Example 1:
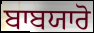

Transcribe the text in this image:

ਬਾਬਯਾਰੋ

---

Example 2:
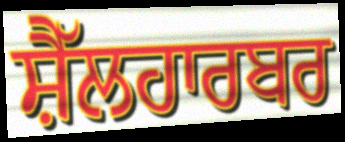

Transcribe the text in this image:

ਸ਼ੈੱਲਹਾਰਬਰ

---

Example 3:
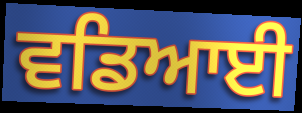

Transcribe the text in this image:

ਵਡਿਆਈ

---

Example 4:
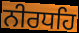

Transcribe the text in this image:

ਨੀਰਧਹਿ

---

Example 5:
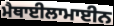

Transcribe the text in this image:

ਮੈਥਾਈਲਾਮਾਈਨ